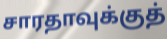
சாரதாவுக்குத்